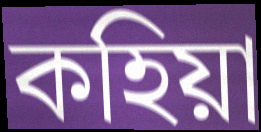
কহিয়া